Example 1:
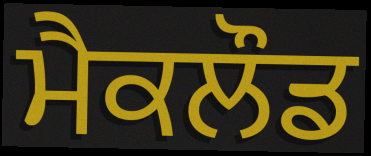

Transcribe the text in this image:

ਮੈਕਲੌਡ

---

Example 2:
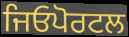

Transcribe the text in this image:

ਜਿਓਪੋਰਟਲ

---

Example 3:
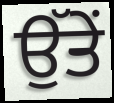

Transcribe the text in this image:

ਉੱਤੇਂ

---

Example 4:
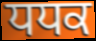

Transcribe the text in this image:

ਧਧਕ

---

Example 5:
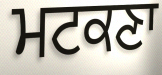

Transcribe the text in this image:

ਮਟਕਣਾ